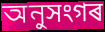
অনুসংগৰ